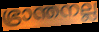
ഭ്രാന്തനല്ല